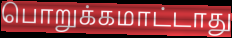
பொறுக்கமாட்டாது